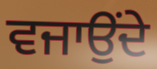
ਵਜਾਉਂਦੇ